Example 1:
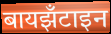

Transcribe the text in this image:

बायझँटाइन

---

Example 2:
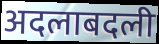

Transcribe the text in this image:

अदलाबदली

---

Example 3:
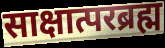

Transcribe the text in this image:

साक्षात्परब्रह्म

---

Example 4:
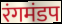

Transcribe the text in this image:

रंगमंडप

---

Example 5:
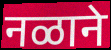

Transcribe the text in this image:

नळाने